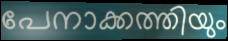
പേനാക്കത്തിയും